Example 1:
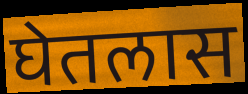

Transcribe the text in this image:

घेतलास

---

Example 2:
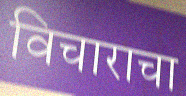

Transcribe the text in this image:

विचाराचा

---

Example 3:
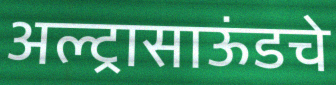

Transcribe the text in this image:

अल्ट्रासाऊंडचे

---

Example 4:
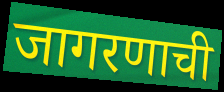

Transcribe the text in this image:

जागरणाची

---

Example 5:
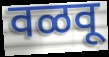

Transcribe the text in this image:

वळवू